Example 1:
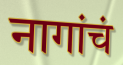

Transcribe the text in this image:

नागांचं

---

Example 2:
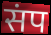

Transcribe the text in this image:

संप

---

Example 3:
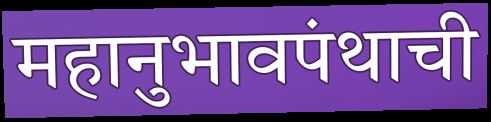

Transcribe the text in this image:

महानुभावपंथाची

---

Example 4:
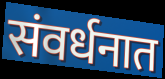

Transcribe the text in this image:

संवर्धनात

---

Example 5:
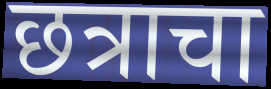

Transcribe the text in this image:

छत्राचा